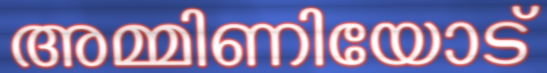
അമ്മിണിയോട്